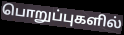
பொறுப்புகளில்